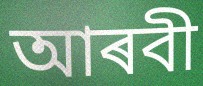
আৰবী